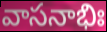
వాసనాభిః